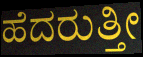
ಹೆದರುತ್ತೀ